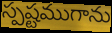
స్పష్టముగాను